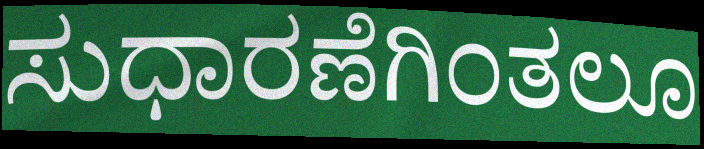
ಸುಧಾರಣೆಗಿಂತಲೂ